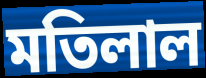
মতিলাল